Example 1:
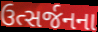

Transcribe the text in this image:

ઉત્સર્જનના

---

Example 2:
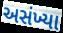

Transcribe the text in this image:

અસંખ્યા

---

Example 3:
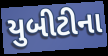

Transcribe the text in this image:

યુબીટીના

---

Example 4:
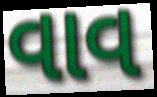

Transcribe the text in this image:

વાવ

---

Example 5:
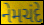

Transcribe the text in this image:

નેમચંદે